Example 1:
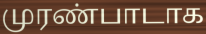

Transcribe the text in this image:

முரண்பாடாக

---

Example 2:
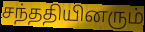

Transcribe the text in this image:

சந்ததியினரும்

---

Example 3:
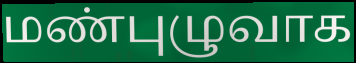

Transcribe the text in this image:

மண்புழுவாக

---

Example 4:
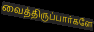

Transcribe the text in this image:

வைத்திருப்பார்களே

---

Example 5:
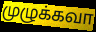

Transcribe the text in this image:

முழுக்கவா